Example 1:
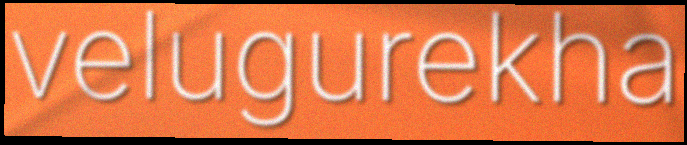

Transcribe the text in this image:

velugurekha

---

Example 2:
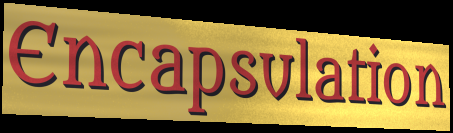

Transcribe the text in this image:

Encapsulation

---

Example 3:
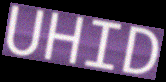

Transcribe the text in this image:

UHID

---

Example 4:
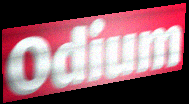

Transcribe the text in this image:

Odium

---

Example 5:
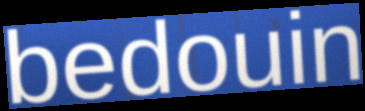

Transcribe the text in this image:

bedouin